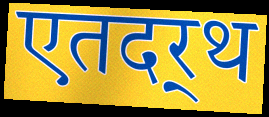
एतदर्थ